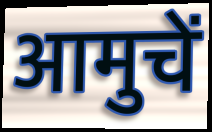
आमुचें